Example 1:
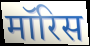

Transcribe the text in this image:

मॉरिस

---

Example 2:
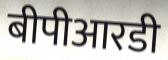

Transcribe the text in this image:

बीपीआरडी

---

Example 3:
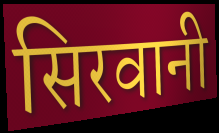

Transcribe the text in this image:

सिरवानी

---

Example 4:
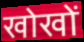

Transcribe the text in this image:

खोखों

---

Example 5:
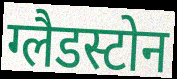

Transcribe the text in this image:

ग्लैडस्टोन